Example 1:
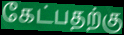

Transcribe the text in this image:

கேட்பதற்கு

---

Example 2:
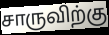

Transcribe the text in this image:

சாருவிற்கு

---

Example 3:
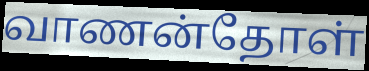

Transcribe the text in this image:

வாணன்தோள்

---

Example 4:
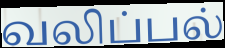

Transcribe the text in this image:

வலிப்பல்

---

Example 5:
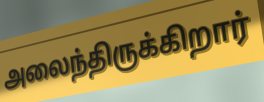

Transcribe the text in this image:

அலைந்திருக்கிறார்